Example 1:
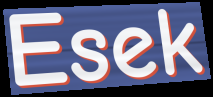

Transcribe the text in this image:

Esek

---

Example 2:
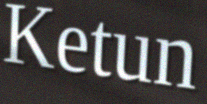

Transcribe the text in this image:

Ketun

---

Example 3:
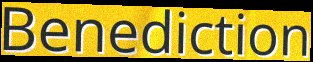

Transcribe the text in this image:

Benediction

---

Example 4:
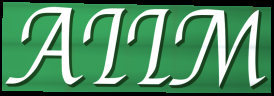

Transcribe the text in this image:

AIIM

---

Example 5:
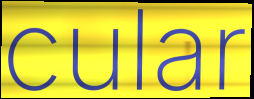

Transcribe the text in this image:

cular